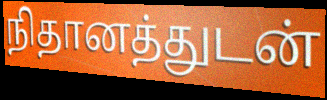
நிதானத்துடன்